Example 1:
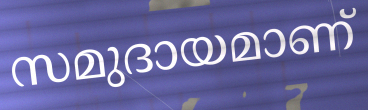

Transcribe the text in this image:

സമുദായമാണ്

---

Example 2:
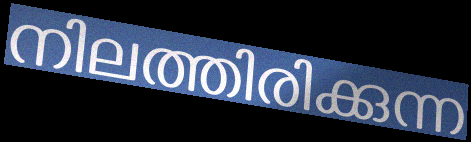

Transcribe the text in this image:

നിലത്തിരിക്കുന്ന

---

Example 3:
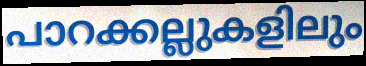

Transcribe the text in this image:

പാറക്കല്ലുകളിലും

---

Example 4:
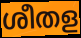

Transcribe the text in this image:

ശീതള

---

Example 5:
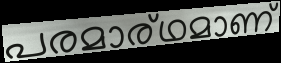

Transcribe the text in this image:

പരമാര്ഥമാണ്